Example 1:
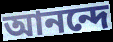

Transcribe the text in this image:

আনন্দে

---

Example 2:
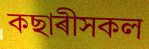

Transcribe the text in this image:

কছাৰীসকল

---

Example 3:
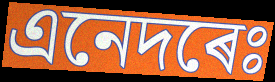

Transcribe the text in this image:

এনেদৰেঃ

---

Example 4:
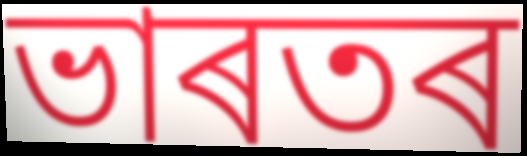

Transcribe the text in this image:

ভাৰতৰ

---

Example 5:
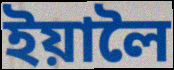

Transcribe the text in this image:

ইয়ালৈ